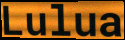
Lulua